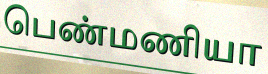
பெண்மணியா